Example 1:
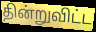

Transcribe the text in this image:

தின்றுவிட்ட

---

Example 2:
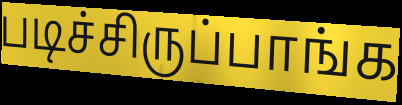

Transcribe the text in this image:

படிச்சிருப்பாங்க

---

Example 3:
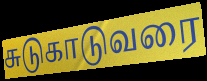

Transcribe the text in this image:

சுடுகாடுவரை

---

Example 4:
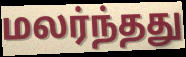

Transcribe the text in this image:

மலர்ந்தது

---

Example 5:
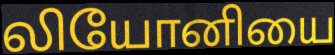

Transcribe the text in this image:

லியோனியை